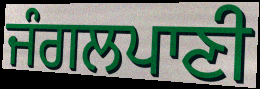
ਜੰਗਲਪਾਣੀ